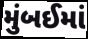
મુંબઈમાં